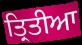
ਤ੍ਰਿਤੀਆ